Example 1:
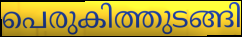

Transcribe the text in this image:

പെരുകിത്തുടങ്ങി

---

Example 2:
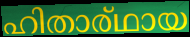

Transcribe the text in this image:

ഹിതാര്ഥായ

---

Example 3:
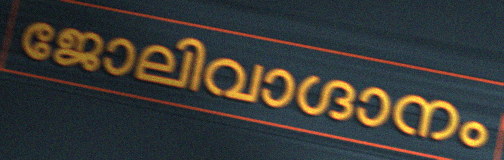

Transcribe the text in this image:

ജോലിവാഗ്ദാനം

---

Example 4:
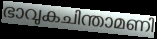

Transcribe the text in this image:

ഭാവുകചിന്താമണി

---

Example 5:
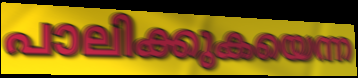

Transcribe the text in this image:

പാലിക്കുകയെന്ന